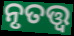
ନୃତତ୍ତ୍ଵ